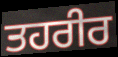
ਤਹਰੀਰ